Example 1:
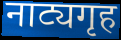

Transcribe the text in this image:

नाट्यगृह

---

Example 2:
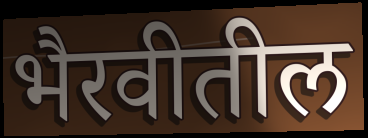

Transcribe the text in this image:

भैरवीतील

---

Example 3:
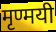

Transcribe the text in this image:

मृण्मयी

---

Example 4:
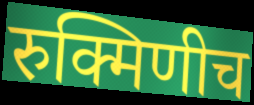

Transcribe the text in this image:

रुक्मिणीच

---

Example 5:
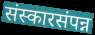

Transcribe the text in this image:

संस्कारसंपन्न